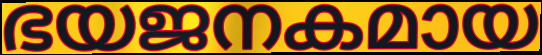
ഭയജനകമായ